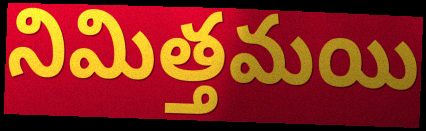
నిమిత్తమయి